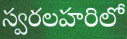
స్వరలహరిలో